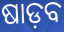
ଷାଡ଼ବ